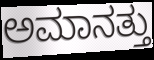
ಅಮಾನತ್ತು